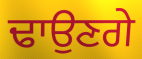
ਢਾਉਣਗੇ